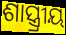
ଶାସ୍ତ୍ର୍ରୀୟ